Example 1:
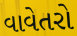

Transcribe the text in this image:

વાવેતરો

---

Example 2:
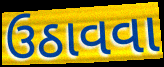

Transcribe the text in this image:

ઉઠાવવા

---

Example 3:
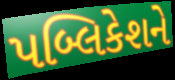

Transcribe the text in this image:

પબ્લિકેશને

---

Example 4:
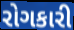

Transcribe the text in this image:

રોગકારી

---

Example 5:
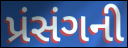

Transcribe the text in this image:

પ્રંસંગની